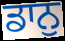
ਡਾਨੁ